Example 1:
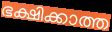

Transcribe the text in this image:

ഭക്ഷിക്കാത്ത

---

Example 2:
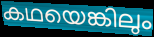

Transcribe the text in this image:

കഥയെങ്കിലും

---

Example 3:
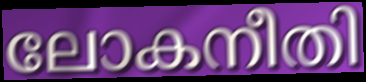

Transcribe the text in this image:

ലോകനീതി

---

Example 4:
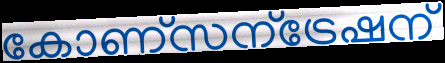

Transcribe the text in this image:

കോണ്സന്ട്രേഷന്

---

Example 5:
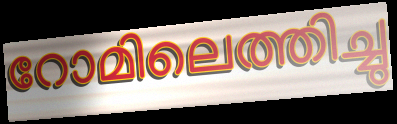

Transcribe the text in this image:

റോമിലെത്തിച്ചു